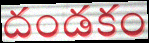
దండకం